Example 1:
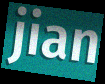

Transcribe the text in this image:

jian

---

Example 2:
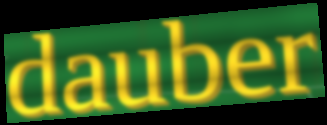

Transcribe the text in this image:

dauber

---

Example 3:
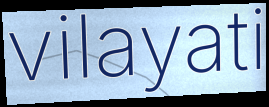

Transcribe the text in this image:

vilayati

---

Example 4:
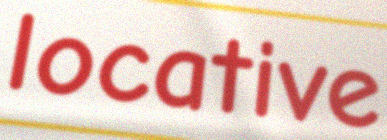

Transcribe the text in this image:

locative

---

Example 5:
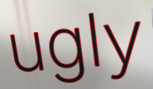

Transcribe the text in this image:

ugly